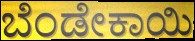
ಬೆಂಡೇಕಾಯಿ